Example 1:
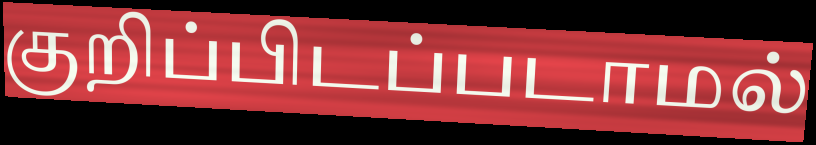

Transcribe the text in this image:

குறிப்பிடப்படாமல்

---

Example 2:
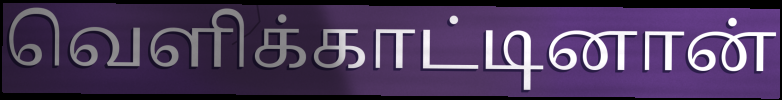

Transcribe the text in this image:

வெளிக்காட்டினான்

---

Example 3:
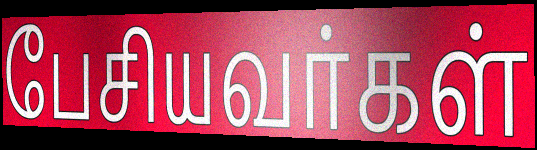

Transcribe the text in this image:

பேசியவர்கள்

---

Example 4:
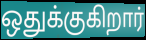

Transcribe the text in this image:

ஒதுக்குகிறார்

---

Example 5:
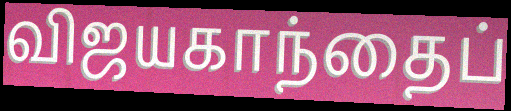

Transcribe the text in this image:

விஜயகாந்தைப்